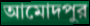
আমোদপুর